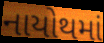
નાયોથમાં